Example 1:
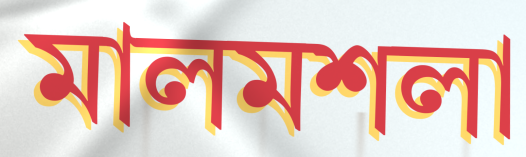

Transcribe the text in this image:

মালমশলা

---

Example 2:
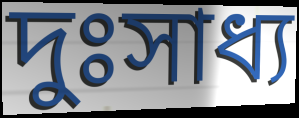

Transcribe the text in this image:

দুঃসাধ্য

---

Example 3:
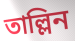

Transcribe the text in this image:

তাল্লিন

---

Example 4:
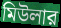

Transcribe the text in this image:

মিউলার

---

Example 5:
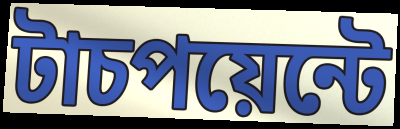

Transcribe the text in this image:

টাচপয়েন্টে